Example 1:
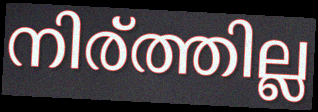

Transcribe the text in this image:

നിര്ത്തില്ല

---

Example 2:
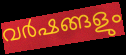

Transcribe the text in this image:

വർഷങ്ങളും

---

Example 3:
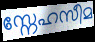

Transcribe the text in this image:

സ്നേഹസീമ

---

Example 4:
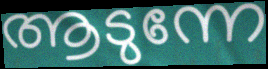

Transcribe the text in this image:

ആടുന്നേ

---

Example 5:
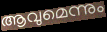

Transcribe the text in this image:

ആവുമെന്നും